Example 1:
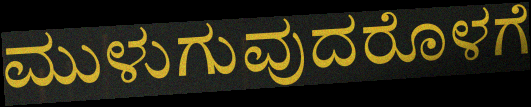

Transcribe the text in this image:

ಮುಳುಗುವುದರೊಳಗೆ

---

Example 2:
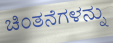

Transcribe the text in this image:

ಚಿಂತನೆಗಳನ್ನು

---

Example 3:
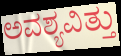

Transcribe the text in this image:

ಅವಶ್ಯವಿತ್ತು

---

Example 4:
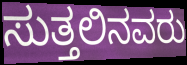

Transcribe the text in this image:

ಸುತ್ತಲಿನವರು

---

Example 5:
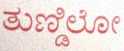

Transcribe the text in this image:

ತುಣ್ಡಿಲೋ